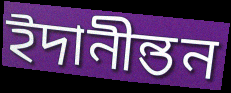
ইদানীন্তন